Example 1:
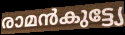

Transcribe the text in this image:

രാമൻകുട്ട്യേ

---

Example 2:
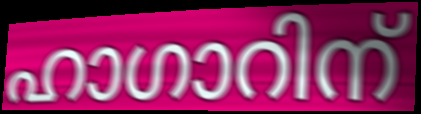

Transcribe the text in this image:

ഹാഗാറിന്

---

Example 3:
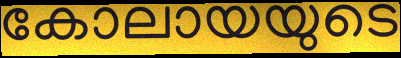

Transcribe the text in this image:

കോലായയുടെ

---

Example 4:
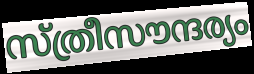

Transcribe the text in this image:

സ്ത്രീസൗന്ദര്യം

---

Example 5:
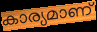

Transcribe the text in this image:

കാര്യമാണ്